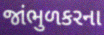
જાંભુળકરના